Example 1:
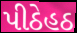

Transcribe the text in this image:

પીઠેહઠ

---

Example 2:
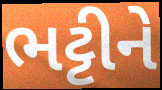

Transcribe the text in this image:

ભટ્ટીને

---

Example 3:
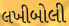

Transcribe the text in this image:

લખીબોલી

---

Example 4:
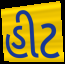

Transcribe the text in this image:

હીટ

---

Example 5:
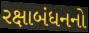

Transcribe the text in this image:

રક્ષાબંધનનો